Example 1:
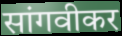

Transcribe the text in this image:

सांगवीकर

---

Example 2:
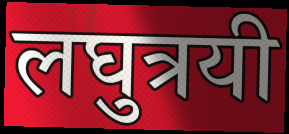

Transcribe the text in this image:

लघुत्रयी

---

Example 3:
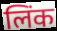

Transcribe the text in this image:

लिंक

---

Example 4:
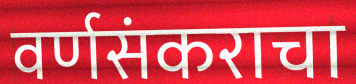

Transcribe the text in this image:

वर्णसंकराचा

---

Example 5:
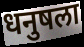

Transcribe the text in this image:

धनुषला